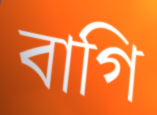
বাগি